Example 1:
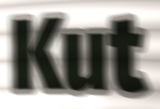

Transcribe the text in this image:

Kut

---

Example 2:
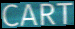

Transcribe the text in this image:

CART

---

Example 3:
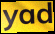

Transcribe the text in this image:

yad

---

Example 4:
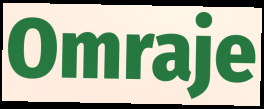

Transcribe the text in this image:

Omraje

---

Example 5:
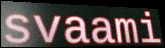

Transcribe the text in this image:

svaami